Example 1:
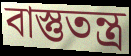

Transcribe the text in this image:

বাস্তুতন্ত্র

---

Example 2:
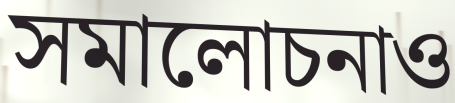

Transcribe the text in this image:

সমালোচনাও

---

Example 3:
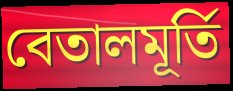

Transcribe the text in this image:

বেতালমূর্তি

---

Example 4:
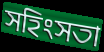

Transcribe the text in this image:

সহিংসতা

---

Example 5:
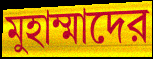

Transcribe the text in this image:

মুহাম্মাদের